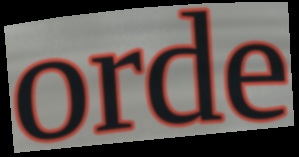
orde